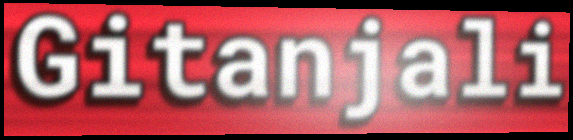
Gitanjali